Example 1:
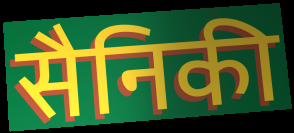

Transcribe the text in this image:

सैनिकी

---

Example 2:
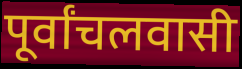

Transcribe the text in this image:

पूर्वांचलवासी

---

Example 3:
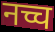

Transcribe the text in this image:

नच्च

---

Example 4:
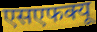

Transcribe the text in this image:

एसएफक्यू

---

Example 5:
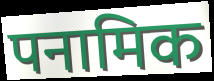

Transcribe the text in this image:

पनामिक